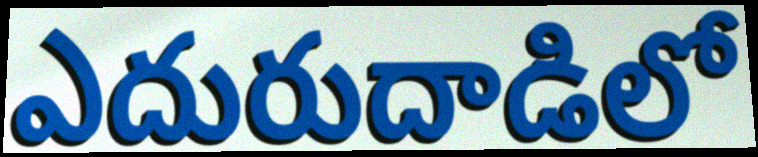
ఎదురుదాడిలో